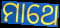
ମାଥେ